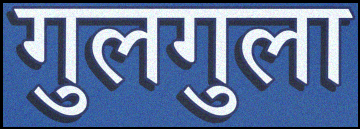
गुलगुला